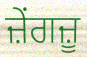
ਜ਼ੇਂਗਜ਼ੂ